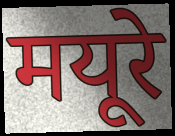
मयूरे